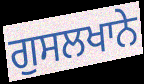
ਗੁਸਲਖਾਨੇ